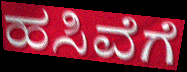
ಹಸಿವೆಗೆ